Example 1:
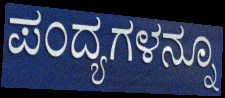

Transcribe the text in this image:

ಪಂದ್ಯಗಳನ್ನೂ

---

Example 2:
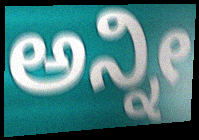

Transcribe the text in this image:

ಅನ್ನೀ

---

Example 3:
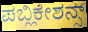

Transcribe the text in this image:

ಪಬ್ಲಿಕೇಶನ್ಸ್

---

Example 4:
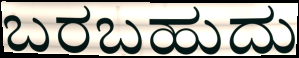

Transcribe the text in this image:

ಬರಬಹುದು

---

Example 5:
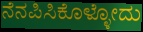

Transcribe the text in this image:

ನೆನಪಿಸಿಕೊಳ್ಳೋದು